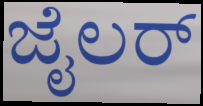
ಜೈಲರ್